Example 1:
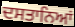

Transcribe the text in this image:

ਦਸਤਾਨਿਆਂ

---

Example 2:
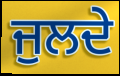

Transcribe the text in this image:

ਜੁਲਦੇ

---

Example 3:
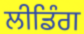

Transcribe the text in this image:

ਲੀਡਿੰਗ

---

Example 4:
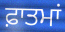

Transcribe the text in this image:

ਫ਼ਾਤਮਾਂ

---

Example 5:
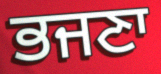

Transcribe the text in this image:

ਭਜਣਾ